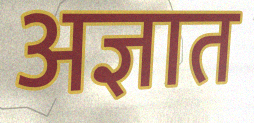
अज्ञात